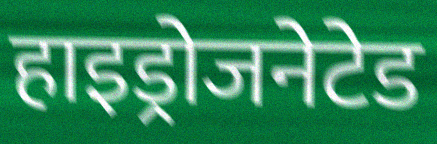
हाइड्रोजनेटेड